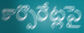
కార్పొరేట్లపై